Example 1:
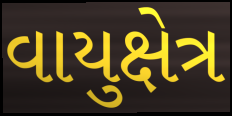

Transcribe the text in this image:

વાયુક્ષેત્ર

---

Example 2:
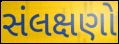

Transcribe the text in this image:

સંલક્ષણો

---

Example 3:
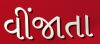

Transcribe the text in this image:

વીંજાતા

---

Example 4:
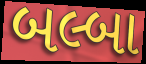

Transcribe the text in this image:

બલ્બા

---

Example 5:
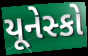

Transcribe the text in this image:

યૂનેસ્કો